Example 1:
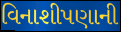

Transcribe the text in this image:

વિનાશીપણાની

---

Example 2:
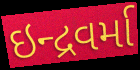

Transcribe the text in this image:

ઇન્દ્રવર્મા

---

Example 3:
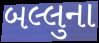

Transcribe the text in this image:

બલ્લુના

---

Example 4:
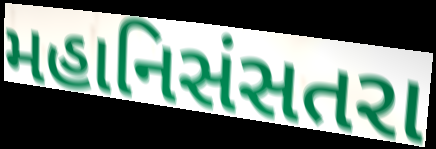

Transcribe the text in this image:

મહાનિસંસતરા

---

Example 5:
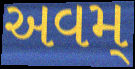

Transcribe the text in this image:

અવમ્